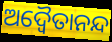
ଅଦ୍ଵୈତାନନ୍ଦ